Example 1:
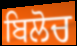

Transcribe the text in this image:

ਬਿਲੋਚ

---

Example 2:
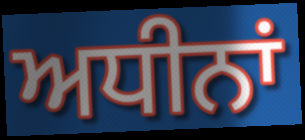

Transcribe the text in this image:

ਅਧੀਨਾਂ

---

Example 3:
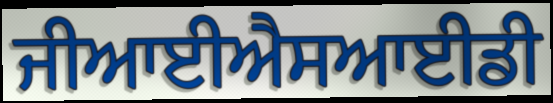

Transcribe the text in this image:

ਜੀਆਈਐਸਆਈਡੀ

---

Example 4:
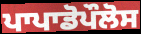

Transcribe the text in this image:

ਪਾਪਾਡੋਪੌਲੋਸ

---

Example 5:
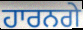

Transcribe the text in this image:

ਹਾਰਨਗੇ